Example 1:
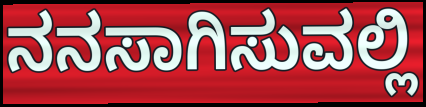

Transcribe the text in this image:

ನನಸಾಗಿಸುವಲ್ಲಿ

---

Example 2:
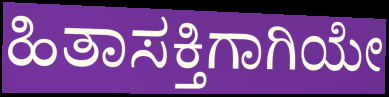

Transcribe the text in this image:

ಹಿತಾಸಕ್ತಿಗಾಗಿಯೇ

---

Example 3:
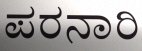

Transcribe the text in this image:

ಪರನಾರಿ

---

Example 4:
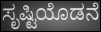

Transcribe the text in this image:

ಸೃಷ್ಟಿಯೊಡನೆ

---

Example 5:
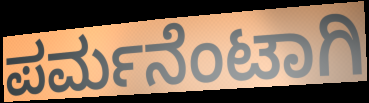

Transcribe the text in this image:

ಪರ್ಮನೆಂಟಾಗಿ